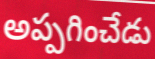
అప్పగించేడు